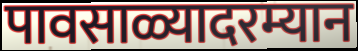
पावसाळ्यादरम्यान